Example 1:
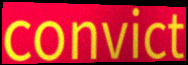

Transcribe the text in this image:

convict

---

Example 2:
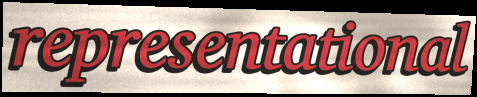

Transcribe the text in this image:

representational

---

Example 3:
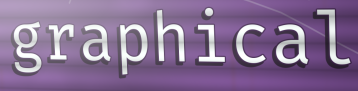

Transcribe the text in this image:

graphical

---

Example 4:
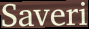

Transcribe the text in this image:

Saveri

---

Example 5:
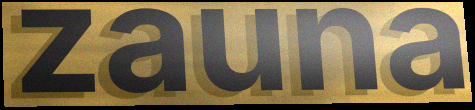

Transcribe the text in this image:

zauna